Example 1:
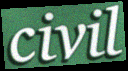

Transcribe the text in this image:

civil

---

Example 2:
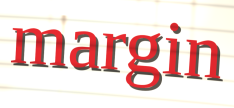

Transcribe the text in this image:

margin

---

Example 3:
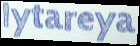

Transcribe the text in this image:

Iytareya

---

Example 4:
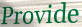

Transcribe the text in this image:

Provide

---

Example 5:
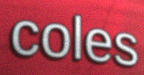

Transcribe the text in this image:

coles